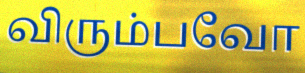
விரும்பவோ